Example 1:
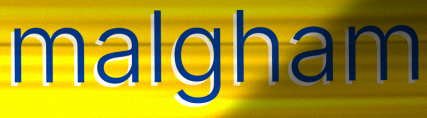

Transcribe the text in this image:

malgham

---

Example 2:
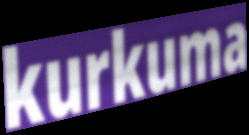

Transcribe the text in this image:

kurkuma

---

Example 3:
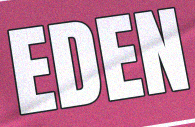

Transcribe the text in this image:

EDEN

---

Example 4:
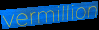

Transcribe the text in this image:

vermillion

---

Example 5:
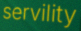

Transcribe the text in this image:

servility